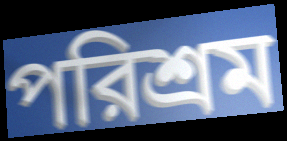
পরিশ্রম